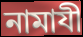
নামাযী